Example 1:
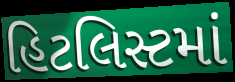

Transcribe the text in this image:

હિટલિસ્ટમાં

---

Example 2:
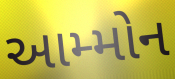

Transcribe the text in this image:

આમ્મોન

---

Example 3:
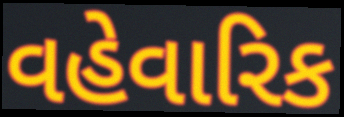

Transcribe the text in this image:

વહેવારિક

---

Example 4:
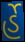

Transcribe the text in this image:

ર્હે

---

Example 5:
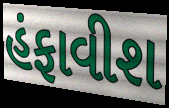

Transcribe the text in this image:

હંફાવીશ